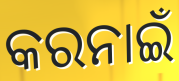
କରନାଇଁ